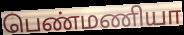
பெண்மணியா